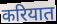
करियात